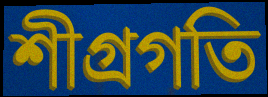
শীগ্রগতি